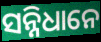
ସନ୍ନିଧାନେ